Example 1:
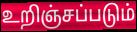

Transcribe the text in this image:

உறிஞ்சப்படும்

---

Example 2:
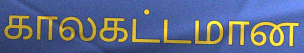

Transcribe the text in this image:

காலகட்டமான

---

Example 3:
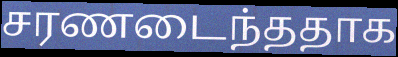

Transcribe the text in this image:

சரணடைந்ததாக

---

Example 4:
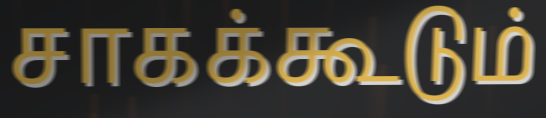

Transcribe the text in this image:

சாகக்கூடும்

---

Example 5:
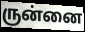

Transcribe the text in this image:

ருன்னை